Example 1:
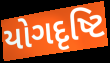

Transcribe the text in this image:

યોગદૃષ્ટિ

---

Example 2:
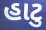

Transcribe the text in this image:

હાટુ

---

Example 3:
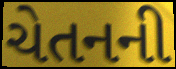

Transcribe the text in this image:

ચેતનની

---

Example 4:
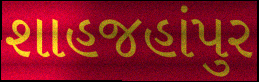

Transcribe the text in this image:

શાહજહાંપુર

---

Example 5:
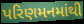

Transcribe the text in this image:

પરિણમનમાંથી